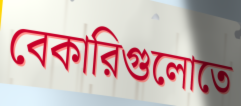
বেকারিগুলোতে